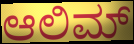
ಆಲಿಮ್